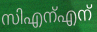
സിഎന്എന്